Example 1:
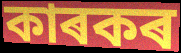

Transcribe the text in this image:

কাৰকৰ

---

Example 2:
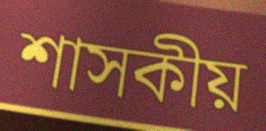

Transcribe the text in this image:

শাসকীয়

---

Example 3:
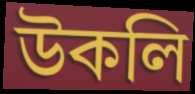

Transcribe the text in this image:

উকলি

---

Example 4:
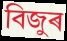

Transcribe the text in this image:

বিজুৰ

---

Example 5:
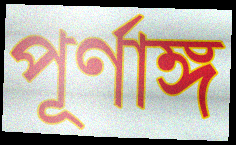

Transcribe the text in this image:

পূৰ্ণাঙ্গ